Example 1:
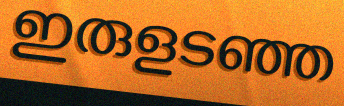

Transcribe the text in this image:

ഇരുളടഞ്ഞ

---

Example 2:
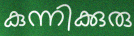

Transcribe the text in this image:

കുന്നിക്കുരു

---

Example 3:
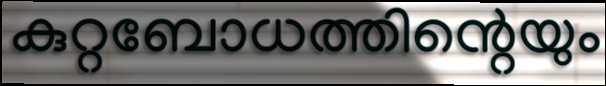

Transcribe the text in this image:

കുറ്റബോധത്തിന്റെയും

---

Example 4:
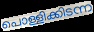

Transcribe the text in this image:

പൊള്ളിക്കിടന്ന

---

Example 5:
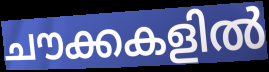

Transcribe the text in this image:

ചൗക്കകളിൽ